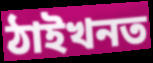
ঠাইখনত